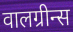
वालग्रीन्स